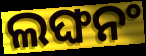
ଲଙ୍ଘନଂ